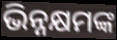
ଭିନ୍ନକ୍ଷମଙ୍କ